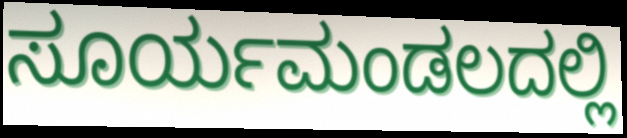
ಸೂರ್ಯಮಂಡಲದಲ್ಲಿ